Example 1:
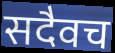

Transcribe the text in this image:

सदैवच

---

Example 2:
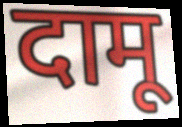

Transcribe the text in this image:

दामू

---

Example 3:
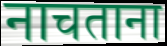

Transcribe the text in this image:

नाचताना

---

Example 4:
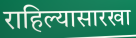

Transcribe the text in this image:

राहिल्यासारखा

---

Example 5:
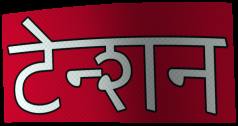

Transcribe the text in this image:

टेन्शन